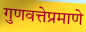
गुणवत्तेप्रमाणे